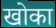
खोका